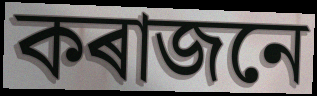
কৰাজনে